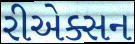
રીએક્સન